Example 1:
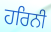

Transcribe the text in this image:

ਹਰਿਨੀ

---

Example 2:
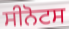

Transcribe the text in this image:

ਸੀਨੋਟਸ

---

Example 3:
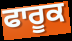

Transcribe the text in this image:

ਫਾਰੂਕ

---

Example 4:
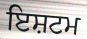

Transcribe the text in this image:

ਇਸ਼ਟਮ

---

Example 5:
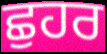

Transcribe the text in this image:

ਛੁਹਰ